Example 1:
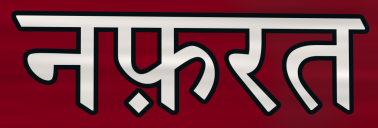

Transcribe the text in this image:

नफ़रत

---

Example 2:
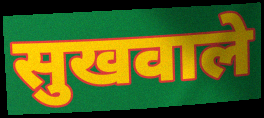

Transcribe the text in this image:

सुखवाले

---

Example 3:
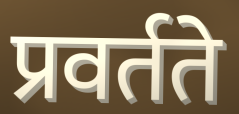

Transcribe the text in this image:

प्रवर्तते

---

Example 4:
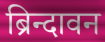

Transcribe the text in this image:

ब्रिन्दावन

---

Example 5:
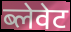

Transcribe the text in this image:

ब्लेवेट